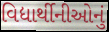
વિદ્યાર્થીનીઓનું